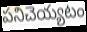
పనిచెయ్యటం